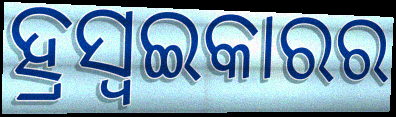
ହ୍ରସ୍ୱଇକାରର